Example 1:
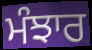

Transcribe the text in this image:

ਮੰਝਾਰ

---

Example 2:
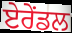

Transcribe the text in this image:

ਏਰੇਂਡਲ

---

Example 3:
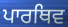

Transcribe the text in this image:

ਪਾਰਥਿਵ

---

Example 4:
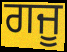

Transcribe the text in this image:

ਗਜੂ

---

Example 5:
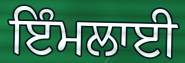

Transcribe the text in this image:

ਇੰਮਲਾਈ